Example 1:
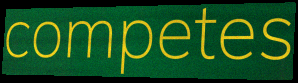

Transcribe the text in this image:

competes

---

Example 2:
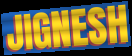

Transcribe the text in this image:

JIGNESH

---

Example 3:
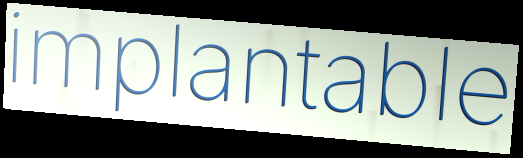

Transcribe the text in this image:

implantable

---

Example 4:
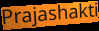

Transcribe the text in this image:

Prajashakti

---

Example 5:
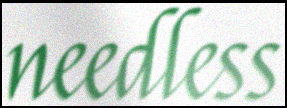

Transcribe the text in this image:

needless